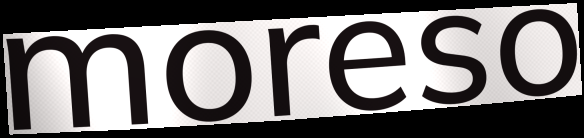
moreso